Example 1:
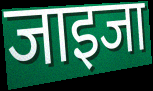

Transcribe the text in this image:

जाइजा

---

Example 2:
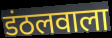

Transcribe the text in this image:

डंठलवाला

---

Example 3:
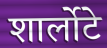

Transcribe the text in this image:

शार्लोटे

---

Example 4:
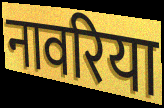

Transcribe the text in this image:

नावरिया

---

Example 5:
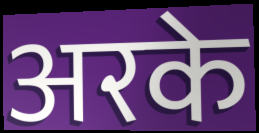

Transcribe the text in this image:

अरके